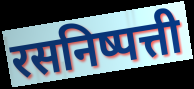
रसनिष्पत्ती